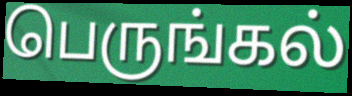
பெருங்கல்